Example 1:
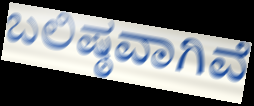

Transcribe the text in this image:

ಬಲಿಷ್ಠವಾಗಿವೆ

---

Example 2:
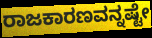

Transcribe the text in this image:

ರಾಜಕಾರಣವನ್ನಷ್ಟೇ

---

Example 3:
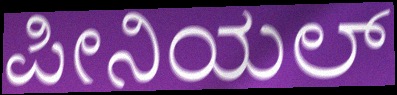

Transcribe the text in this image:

ಪೀನಿಯಲ್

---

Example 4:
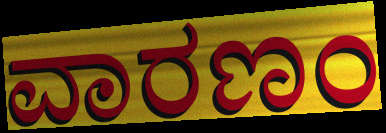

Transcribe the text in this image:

ವಾರಣಂ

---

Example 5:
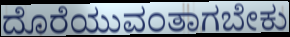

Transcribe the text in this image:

ದೊರೆಯುವಂತಾಗಬೇಕು